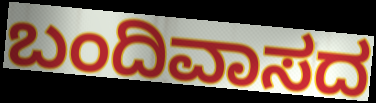
ಬಂದಿವಾಸದ